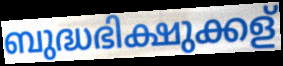
ബുദ്ധഭിക്ഷുക്കള്